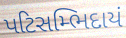
પટિસમ્ભિદાયં